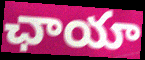
ఛాయా